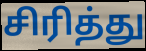
சிரித்து